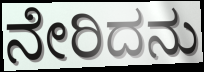
ನೇರಿದನು